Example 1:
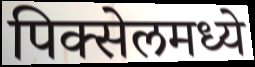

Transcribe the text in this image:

पिक्सेलमध्ये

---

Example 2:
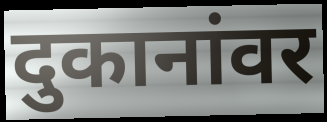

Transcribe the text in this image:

दुकानांवर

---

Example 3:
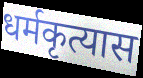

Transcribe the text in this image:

धर्मकृत्यास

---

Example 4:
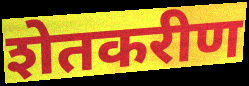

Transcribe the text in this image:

शेतकरीण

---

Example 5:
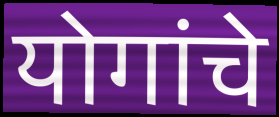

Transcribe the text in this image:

योगांचे